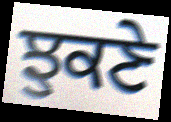
ਝੁਕਣੇ